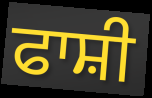
ਫਾਸ਼ੀ